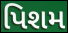
પિશમ